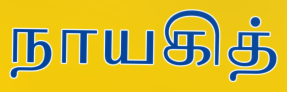
நாயகித்